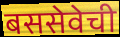
बससेवेची